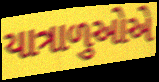
યાત્રાળુઓએ